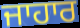
ਜਾਹਾਰ